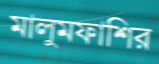
মালুমফাশির